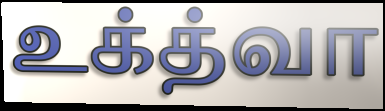
உக்த்வா